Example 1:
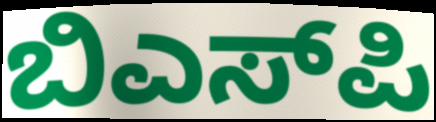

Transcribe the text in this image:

ಬಿಎಸ್‌ಪಿ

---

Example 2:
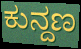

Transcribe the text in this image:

ಕುನ್ದಣ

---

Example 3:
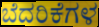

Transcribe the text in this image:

ಬೆದರಿಕೆಗಳ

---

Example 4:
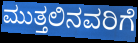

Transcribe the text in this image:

ಮುತ್ತಲಿನವರಿಗೆ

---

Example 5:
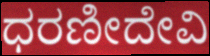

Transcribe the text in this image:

ಧರಣೀದೇವಿ